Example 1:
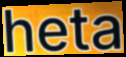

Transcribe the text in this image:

heta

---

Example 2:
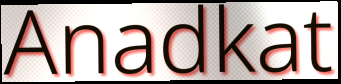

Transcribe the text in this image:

Anadkat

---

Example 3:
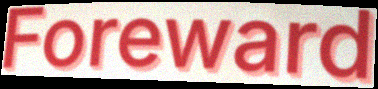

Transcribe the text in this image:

Foreward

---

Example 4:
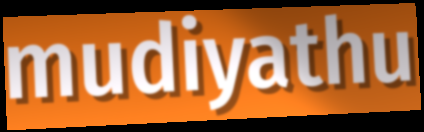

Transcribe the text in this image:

mudiyathu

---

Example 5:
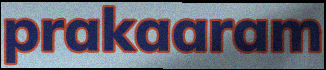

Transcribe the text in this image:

prakaaram